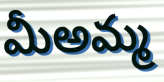
మీఅమ్మ